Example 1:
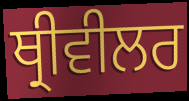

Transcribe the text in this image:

ਥ੍ਰੀਵੀਲਰ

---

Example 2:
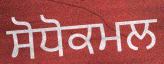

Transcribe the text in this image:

ਸੋਧੋਕਮਲ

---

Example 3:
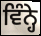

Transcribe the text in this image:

ਵਿੰਨ੍ਹੇ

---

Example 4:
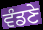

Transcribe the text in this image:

ਵੰਡਣੇ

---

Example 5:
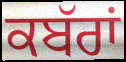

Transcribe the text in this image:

ਕਬੱਰਾਂ